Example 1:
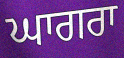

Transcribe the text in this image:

ਘਾਗਰਾ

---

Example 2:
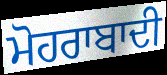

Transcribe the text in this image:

ਮੋਹਰਾਬਾਦੀ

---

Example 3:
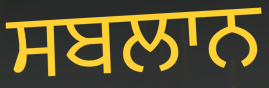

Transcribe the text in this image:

ਸਬਲਾਨ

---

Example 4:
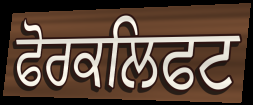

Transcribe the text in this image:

ਫੋਰਕਲਿਫਟ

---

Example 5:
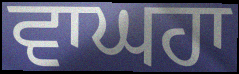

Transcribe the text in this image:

ਵਾਘਹਾ